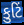
કુટિં